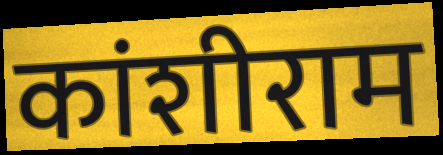
कांशीराम